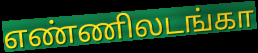
எண்ணிலடங்கா